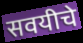
सवयीचे